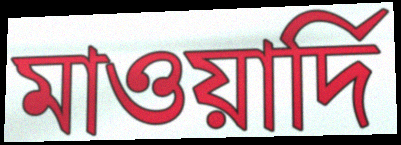
মাওয়ার্দি